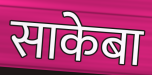
साकेबा